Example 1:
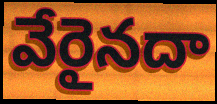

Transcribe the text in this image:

వేరైనదా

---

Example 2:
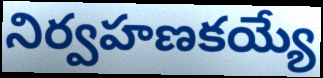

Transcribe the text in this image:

నిర్వహణకయ్యే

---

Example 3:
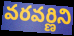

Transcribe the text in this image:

వరవర్ణిని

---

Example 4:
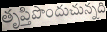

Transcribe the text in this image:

తృప్తిపొందుచున్నది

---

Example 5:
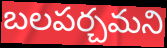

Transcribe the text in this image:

బలపర్చమని